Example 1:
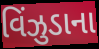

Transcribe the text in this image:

વિંઝુડાના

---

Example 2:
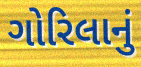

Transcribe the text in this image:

ગોરિલાનું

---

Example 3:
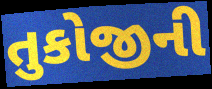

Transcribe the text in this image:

તુકોજીની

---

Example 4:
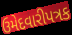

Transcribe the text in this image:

ઉમેદવારીપત્રક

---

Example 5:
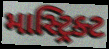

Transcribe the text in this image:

માસ્ટ્રિક્ટ